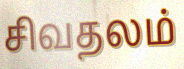
சிவதலம்